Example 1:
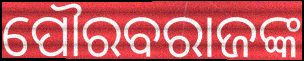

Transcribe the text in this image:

ପୌରବରାଜଙ୍କ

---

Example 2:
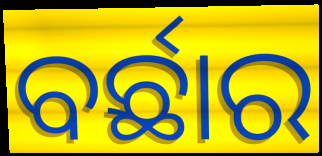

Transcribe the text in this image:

ବର୍ଛାର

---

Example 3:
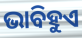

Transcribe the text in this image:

ଭାବିହୁଏ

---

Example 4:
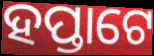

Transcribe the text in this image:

ହପ୍ତାଟେ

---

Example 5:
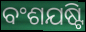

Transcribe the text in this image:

ବଂଶଯଷ୍ଟି